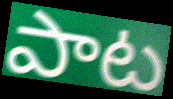
పాట